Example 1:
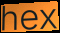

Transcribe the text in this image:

hex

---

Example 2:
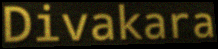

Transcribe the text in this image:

Divakara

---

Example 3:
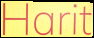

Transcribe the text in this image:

Harit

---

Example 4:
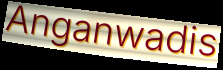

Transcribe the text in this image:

Anganwadis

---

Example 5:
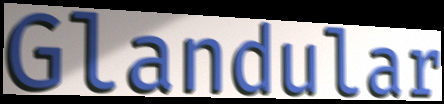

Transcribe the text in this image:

Glandular